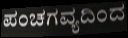
ಪಂಚಗವ್ಯದಿಂದ